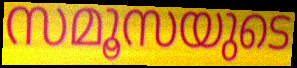
സമൂസയുടെ